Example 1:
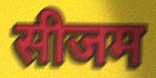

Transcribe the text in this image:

सीजम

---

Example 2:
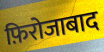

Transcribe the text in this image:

फ़िरोजाबाद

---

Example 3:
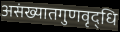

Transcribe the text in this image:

असंख्यातगुणवृद्धि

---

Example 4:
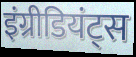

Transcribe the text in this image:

इंग्रीडियंट्स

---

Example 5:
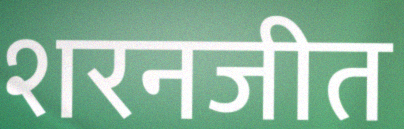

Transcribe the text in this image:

शरनजीत